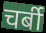
चर्बी